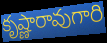
కృష్ణారావుగారి